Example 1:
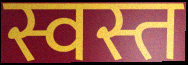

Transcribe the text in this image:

स्वस्त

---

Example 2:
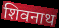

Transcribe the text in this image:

शिवनाथ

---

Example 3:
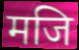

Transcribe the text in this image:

मजि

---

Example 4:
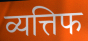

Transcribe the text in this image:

व्यत्तिफ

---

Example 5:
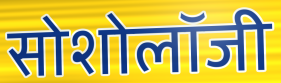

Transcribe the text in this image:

सोशोलॉजी